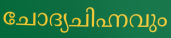
ചോദ്യചിഹ്നവും